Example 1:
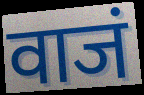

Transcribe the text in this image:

वाजं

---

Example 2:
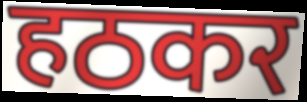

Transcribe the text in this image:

हठकर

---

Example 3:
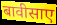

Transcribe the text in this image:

बावीसाए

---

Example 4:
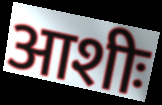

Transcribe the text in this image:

आशीः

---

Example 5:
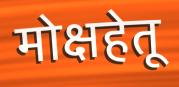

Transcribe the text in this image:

मोक्षहेतू